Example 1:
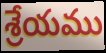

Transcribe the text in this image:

శ్రేయము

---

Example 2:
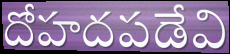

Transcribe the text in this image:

దోహదపడేవి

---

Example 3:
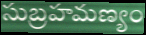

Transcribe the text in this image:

సుబ్రహమణ్యం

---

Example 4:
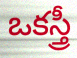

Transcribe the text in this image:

ఒకస్త్రీ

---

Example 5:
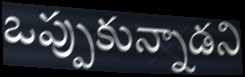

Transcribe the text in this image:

ఒప్పుకున్నాడని